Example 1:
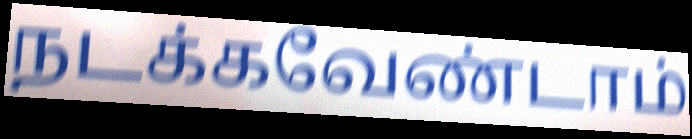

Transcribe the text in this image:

நடக்கவேண்டாம்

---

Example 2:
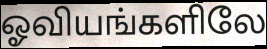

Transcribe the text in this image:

ஓவியங்களிலே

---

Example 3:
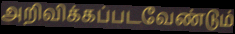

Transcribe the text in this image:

அறிவிக்கப்படவேண்டும்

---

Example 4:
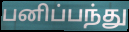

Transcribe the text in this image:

பனிப்பந்து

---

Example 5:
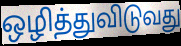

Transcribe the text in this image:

ஒழித்துவிடுவது